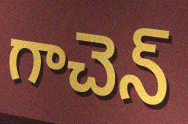
గాచెన్